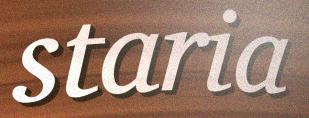
staria